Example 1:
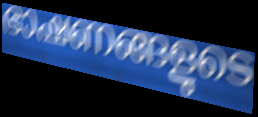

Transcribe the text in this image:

ഭാഷണങ്ങളുടെ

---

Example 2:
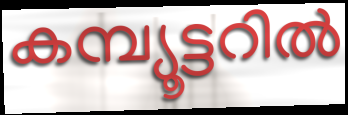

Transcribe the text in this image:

കമ്പ്യൂട്ടറിൽ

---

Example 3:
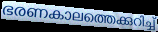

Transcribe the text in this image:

ഭരണകാലത്തെക്കുറിച്ച്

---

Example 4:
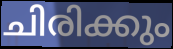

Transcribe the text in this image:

ചിരിക്കും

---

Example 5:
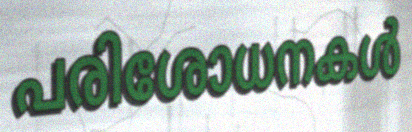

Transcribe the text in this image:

പരിശോധനകൾ